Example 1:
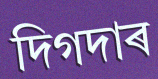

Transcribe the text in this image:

দিগদাৰ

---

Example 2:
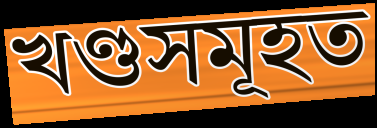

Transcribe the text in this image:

খণ্ডসমূহত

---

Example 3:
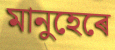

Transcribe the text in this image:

মানুহেৰে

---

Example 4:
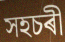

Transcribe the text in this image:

সহচৰী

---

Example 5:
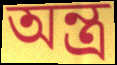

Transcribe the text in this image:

অন্ত্ৰ